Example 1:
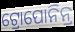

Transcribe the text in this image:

ଟ୍ରୋପୋନିନ୍ର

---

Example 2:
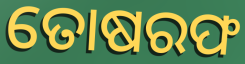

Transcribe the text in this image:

ତୋଷରଫ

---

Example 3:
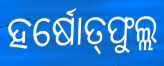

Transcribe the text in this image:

ହର୍ଷୋତ୍‌ଫୁଲ୍ଲ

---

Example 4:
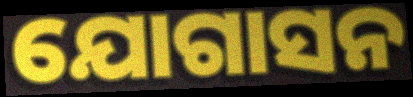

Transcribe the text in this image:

ଯୋଗାସନ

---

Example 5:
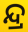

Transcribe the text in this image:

ନ୍ଦ୍ର